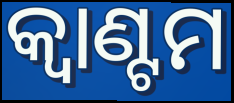
କ୍ୱାଣ୍ଟମ